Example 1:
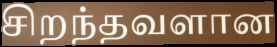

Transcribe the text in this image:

சிறந்தவளான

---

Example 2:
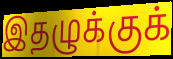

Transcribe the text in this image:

இதழுக்குக்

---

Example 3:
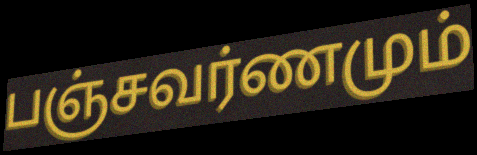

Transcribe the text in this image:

பஞ்சவர்ணமும்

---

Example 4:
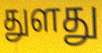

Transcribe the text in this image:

துளது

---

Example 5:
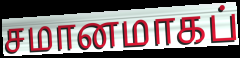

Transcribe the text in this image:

சமானமாகப்